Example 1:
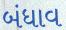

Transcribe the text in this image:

બંધાવ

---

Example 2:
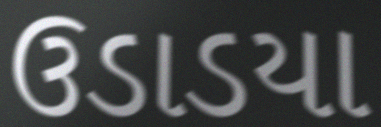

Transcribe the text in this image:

ઉડાડયા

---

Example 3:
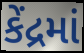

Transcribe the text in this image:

કેંદ્રમાં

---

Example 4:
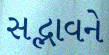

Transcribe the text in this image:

સદ્ભાવને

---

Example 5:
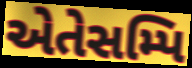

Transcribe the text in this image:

એતેસમ્પિ